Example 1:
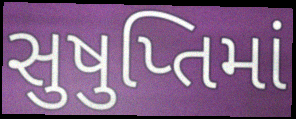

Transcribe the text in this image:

સુષુપ્તિમાં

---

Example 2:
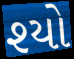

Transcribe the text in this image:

શ્યો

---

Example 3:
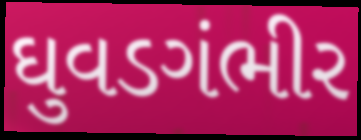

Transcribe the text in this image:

ઘુવડગંભીર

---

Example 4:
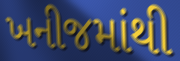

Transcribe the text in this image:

ખનીજમાંથી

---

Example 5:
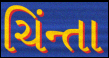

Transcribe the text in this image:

ચિંન્તા